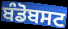
ਬੰਡੋਬਸਟ